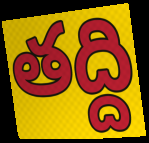
తద్ది